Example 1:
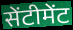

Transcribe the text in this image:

सेंटीमेंट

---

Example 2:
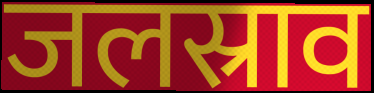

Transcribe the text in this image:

जलस्राव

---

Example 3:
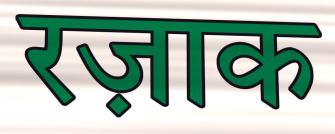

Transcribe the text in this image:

रज़ाक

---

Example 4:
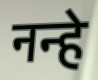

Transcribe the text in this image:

नन्हे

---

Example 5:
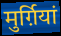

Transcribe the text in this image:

मुर्ग़ियां